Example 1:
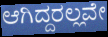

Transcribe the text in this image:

ಆಗಿದ್ದರಲ್ಲವೇ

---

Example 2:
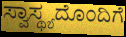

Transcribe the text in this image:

ಸ್ವಾಸ್ಥ್ಯದೊಂದಿಗೆ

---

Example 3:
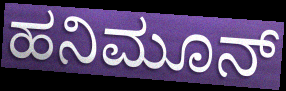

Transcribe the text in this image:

ಹನಿಮೂನ್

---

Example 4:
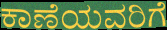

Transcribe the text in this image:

ಕಾಣೆಯವರಿಗೆ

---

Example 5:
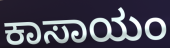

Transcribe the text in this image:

ಕಾಸಾಯಂ